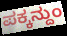
ಪಕ್ಕನ್ದುಂ